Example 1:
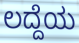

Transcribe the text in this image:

ಲದ್ದೆಯ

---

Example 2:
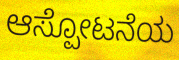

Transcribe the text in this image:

ಆಸ್ಪೋಟನೆಯ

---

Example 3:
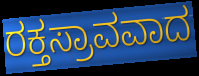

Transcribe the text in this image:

ರಕ್ತಸ್ರಾವವಾದ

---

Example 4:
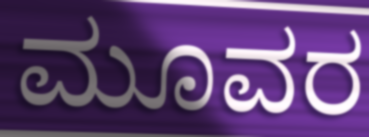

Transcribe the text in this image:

ಮೂವರ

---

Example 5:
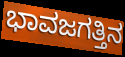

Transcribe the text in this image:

ಭಾವಜಗತ್ತಿನ